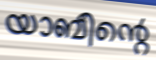
യാബീന്റെ